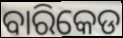
ବାରିକେଡ